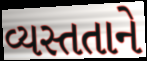
વ્યસ્તતાને